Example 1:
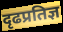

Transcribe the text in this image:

दृढप्रतिज्ञ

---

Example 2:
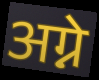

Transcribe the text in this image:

अग्ने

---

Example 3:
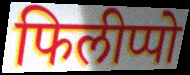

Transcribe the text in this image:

फिलीप्पो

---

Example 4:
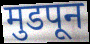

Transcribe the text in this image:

मुडपून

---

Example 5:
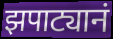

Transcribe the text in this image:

झपाट्यानं